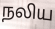
நலிய